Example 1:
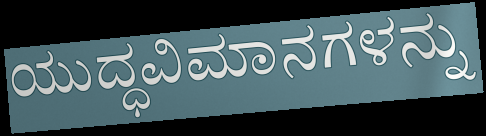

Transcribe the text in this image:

ಯುದ್ಧವಿಮಾನಗಳನ್ನು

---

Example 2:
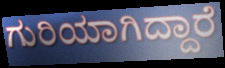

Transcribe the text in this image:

ಗುರಿಯಾಗಿದ್ದಾರೆ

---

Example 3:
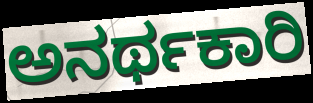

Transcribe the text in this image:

ಅನರ್ಥಕಾರಿ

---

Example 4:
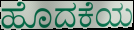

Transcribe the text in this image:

ಹೊದಕೆಯ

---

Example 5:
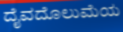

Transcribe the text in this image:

ದೈವದೊಲುಮೆಯ